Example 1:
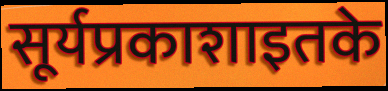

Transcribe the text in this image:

सूर्यप्रकाशाइतके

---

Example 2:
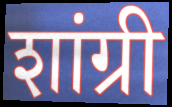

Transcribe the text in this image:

शांग्री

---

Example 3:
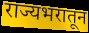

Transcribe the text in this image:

राज्यभरातून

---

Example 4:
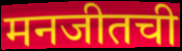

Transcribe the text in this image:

मनजीतची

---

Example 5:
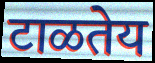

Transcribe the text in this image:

टाळतेय